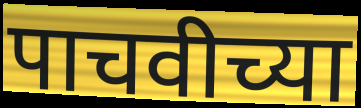
पाचवीच्या